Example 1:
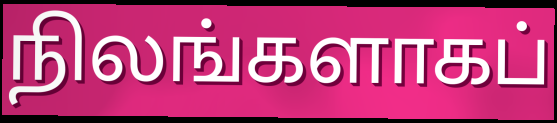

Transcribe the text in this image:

நிலங்களாகப்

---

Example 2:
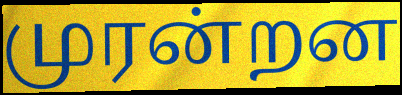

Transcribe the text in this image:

முரன்றன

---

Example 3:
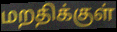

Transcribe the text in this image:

மறதிக்குள்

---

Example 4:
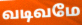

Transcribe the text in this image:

வடிவமே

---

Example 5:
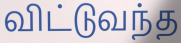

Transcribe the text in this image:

விட்டுவந்த